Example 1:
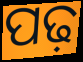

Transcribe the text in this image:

ପଢ଼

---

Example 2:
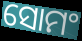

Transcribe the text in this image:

ସୋମଂ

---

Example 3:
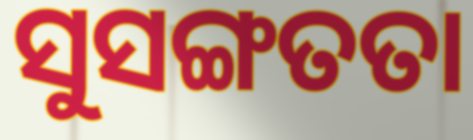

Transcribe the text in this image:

ସୁସଙ୍ଗତତା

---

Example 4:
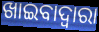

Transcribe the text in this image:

ଖାଇବାଦ୍ୱାରା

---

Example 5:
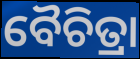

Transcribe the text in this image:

ବୈଚିତ୍ରା